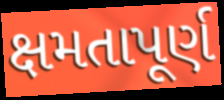
ક્ષમતાપૂર્ણ